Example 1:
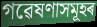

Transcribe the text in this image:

গৱেষণাসমূহৰ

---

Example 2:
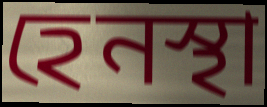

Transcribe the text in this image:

হেনস্থা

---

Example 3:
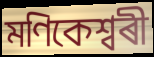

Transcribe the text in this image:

মণিকেশ্বৰী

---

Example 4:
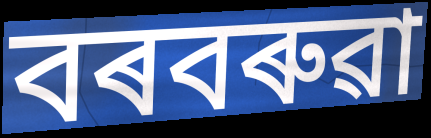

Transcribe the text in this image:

বৰবৰুৱা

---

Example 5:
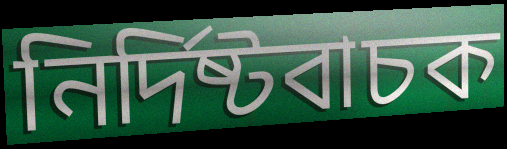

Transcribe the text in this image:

নিৰ্দিষ্টবাচক